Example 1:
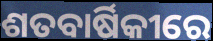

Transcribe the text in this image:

ଶତବାର୍ଷିକୀରେ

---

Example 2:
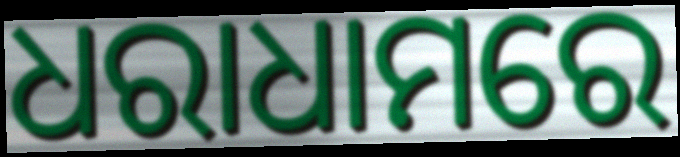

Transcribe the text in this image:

ଧରାଧାମରେ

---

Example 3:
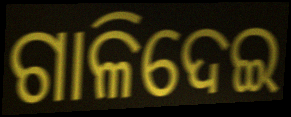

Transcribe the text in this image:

ଗାଳିଦେଇ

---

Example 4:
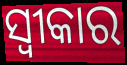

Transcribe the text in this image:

ସ୍ଵୀକାର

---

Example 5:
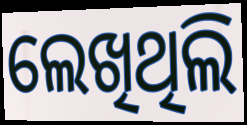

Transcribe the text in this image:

ଲେଖିଥିଲି